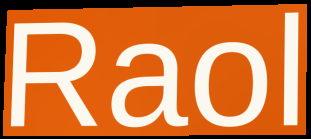
Raol